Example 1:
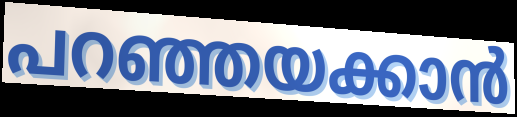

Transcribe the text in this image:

പറഞ്ഞയക്കാൻ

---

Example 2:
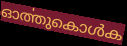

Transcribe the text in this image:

ഓൎത്തുകൊൾക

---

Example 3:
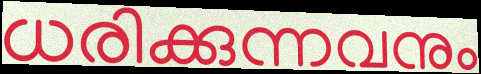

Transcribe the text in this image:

ധരിക്കുന്നവനും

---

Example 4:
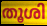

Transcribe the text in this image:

തൂശി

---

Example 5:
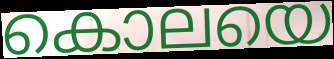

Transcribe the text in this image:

കൊലയെ